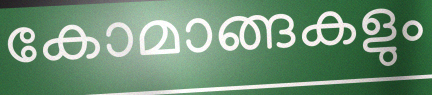
കോമാങ്ങകളും